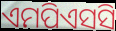
ଏମପିଏସସି